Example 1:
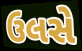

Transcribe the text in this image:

ઉલસે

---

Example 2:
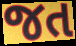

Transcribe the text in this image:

જત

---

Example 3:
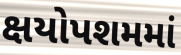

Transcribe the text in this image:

ક્ષયોપશમમાં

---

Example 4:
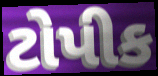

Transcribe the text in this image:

ટોપીક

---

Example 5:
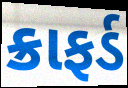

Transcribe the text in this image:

ક્રાફર્ડ